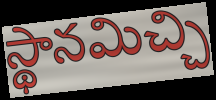
స్థానమిచ్చి